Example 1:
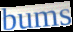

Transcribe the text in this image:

bums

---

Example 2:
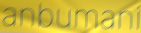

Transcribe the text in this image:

anbumani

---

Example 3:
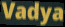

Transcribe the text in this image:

Vadya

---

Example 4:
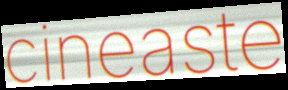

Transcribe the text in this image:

cineaste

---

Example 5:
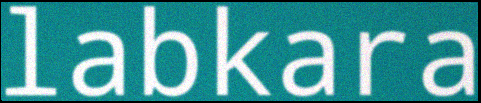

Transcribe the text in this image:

labkara